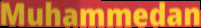
Muhammedan